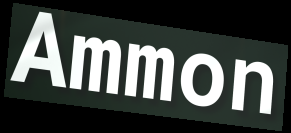
Ammon